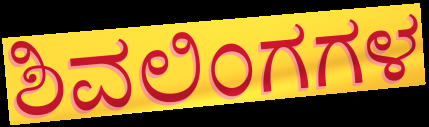
ಶಿವಲಿಂಗಗಳ